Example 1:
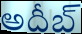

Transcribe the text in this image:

అదీబ్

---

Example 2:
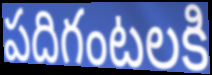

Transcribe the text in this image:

పదిగంటలకి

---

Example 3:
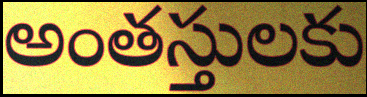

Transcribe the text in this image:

అంతస్తులకు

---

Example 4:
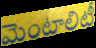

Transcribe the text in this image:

మెంటాలిటీ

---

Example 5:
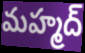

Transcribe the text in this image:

మహ్మద్